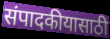
संपादकीयासाठी